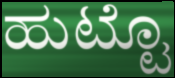
ಹುಟ್ಟೊ